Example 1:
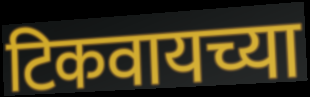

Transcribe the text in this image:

टिकवायच्या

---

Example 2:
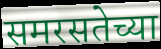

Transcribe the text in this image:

समरसतेच्या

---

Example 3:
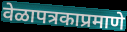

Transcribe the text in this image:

वेळापत्रकाप्रमाणे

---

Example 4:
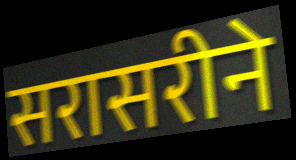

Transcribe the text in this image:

सरासरीने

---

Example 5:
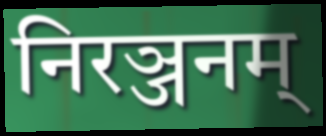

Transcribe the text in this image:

निरञ्जनम्